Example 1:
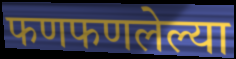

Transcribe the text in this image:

फणफणलेल्या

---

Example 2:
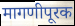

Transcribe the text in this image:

मागणीपूरक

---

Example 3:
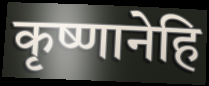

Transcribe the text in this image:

कृष्णानेहि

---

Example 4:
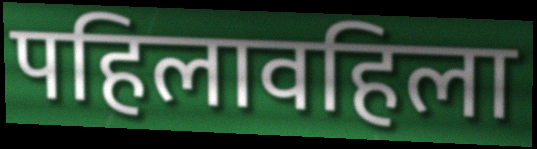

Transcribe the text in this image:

पहिलावहिला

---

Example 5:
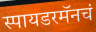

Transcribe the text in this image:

स्पायडरमॅनचं